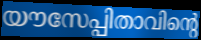
യൗസേപ്പിതാവിന്റെ